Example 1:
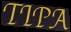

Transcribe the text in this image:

TIPA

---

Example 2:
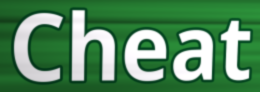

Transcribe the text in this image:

Cheat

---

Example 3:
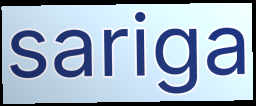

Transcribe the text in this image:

sariga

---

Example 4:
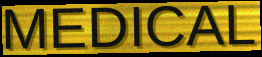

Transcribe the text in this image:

MEDICAL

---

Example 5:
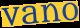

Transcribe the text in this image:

vano